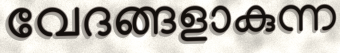
വേദങ്ങളാകുന്ന